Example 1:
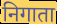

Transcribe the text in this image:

निगाता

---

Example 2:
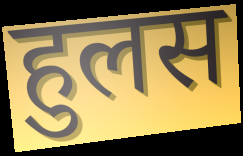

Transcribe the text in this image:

हुलस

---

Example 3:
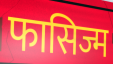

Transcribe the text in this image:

फासिज्म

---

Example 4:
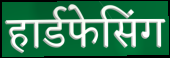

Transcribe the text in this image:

हार्डफेसिंग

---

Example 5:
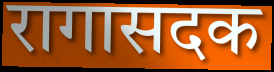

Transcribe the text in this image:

रागासदक